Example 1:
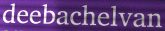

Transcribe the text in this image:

deebachelvan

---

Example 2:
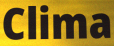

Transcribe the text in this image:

Clima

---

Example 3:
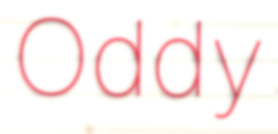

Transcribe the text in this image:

Oddy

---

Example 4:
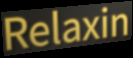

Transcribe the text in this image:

Relaxin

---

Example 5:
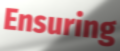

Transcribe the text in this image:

Ensuring